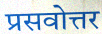
प्रसवोत्तर